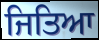
ਜਿਤਿਆ